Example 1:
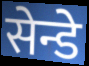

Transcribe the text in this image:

सेन्डे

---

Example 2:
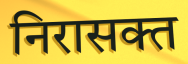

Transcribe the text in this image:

निरासक्त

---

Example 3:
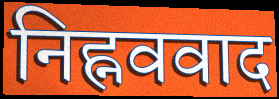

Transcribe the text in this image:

निह्नववाद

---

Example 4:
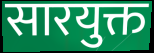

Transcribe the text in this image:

सारयुक्त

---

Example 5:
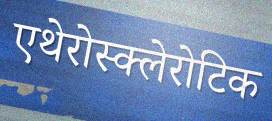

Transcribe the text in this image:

एथेरोस्क्लेरोटिक